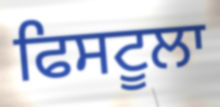
ਫਿਸਟੂਲਾ